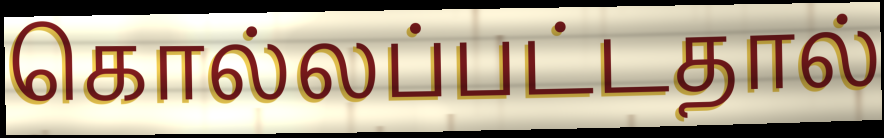
கொல்லப்பட்டதால்